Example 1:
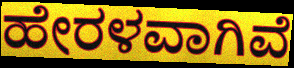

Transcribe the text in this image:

ಹೇರಳವಾಗಿವೆ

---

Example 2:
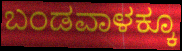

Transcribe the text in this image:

ಬಂಡವಾಳಕ್ಕೂ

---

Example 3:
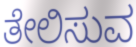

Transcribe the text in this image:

ತೇಲಿಸುವ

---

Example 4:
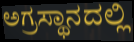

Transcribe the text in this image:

ಅಗ್ರಸ್ಥಾನದಲ್ಲಿ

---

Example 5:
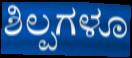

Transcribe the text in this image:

ಶಿಲ್ಪಗಳೂ